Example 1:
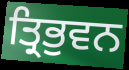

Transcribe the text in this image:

ਤ੍ਰਿਭੁਵਨ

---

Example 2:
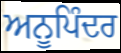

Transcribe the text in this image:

ਅਨੂਪਿੰਦਰ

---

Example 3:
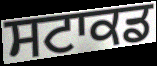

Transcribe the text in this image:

ਸਟਾਕਡ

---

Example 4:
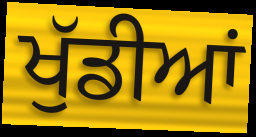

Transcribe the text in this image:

ਖੁੱਡੀਆਂ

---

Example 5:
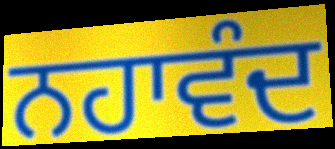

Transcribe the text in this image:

ਨਹਾਵੰਦ